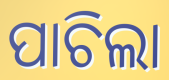
ପାଚିଲା